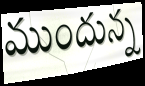
ముందున్న